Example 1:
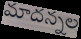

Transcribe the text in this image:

మాదన్నల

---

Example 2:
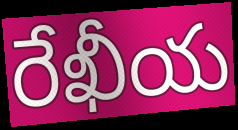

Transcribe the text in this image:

రేఖీయ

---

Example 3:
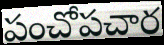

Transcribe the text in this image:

పంచోపచార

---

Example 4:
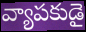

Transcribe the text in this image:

వ్యాపకుడై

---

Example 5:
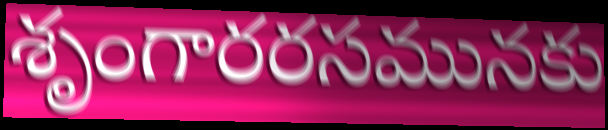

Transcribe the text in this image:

శృంగారరసమునకు